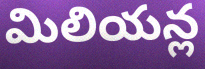
మిలియన్ల